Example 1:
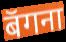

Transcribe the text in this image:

बॅगना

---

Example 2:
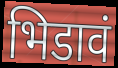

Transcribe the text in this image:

भिडावं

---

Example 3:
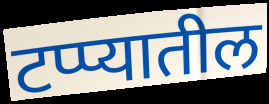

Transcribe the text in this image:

टप्प्यातील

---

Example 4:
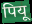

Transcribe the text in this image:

पियू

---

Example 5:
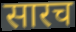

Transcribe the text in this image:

सारच